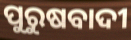
ପୁରୁଷବାଦୀ